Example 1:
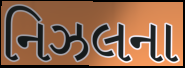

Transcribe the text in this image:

નિઝલના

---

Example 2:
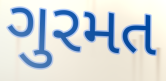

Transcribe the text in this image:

ગુરમત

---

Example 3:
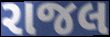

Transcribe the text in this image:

રાજલ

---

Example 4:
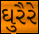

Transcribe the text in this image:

ઘુરૈરે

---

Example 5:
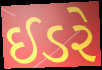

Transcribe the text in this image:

ઈડરે